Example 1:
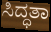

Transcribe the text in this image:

ಸಿದ್ಧತಾ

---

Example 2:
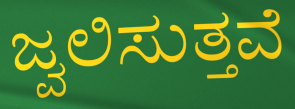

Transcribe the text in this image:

ಜ್ವಲಿಸುತ್ತವೆ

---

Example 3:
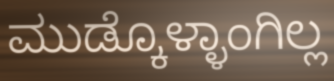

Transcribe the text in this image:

ಮುಡ್ಕೊಳ್ಳಾಂಗಿಲ್ಲ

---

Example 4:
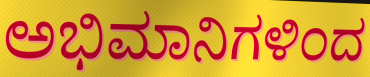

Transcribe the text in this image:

ಅಭಿಮಾನಿಗಳಿಂದ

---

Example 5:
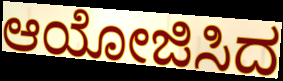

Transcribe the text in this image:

ಆಯೋಜಿಸಿದ